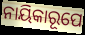
ନାୟିକାରୂପେ